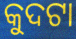
କୁଦଟା